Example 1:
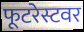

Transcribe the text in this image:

फूटरेस्टवर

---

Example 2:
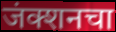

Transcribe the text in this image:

जंक्‍शनचा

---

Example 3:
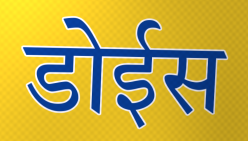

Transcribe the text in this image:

डोईस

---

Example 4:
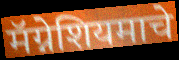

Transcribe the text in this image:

मॅग्नेशियमाचे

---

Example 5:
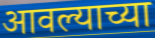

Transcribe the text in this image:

आवल्याच्या